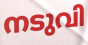
നടുവി